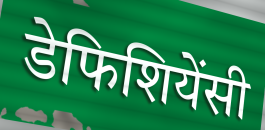
डेफिशियेंसी